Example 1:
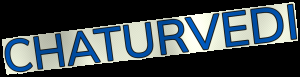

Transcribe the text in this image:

CHATURVEDI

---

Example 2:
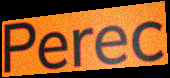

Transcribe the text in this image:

Perec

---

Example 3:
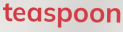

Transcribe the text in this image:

teaspoon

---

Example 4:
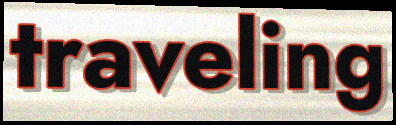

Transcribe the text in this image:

traveling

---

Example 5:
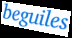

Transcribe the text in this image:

beguiles